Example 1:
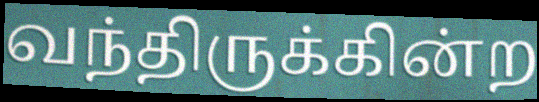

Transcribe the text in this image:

வந்திருக்கின்ற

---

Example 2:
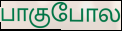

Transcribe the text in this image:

பாகுபோல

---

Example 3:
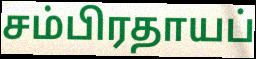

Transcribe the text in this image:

சம்பிரதாயப்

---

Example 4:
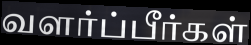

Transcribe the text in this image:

வளர்ப்பீர்கள்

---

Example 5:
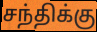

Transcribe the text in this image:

சந்திக்கு